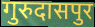
गुरुदासपुर